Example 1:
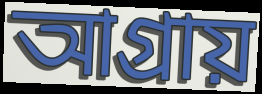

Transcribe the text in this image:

আগ্রায়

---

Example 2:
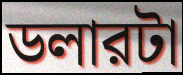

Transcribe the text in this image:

ডলারটা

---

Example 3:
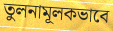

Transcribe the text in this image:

তুলনামূলকভাবে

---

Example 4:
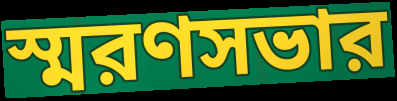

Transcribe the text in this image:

স্মরণসভার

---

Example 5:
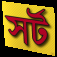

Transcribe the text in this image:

সর্ট